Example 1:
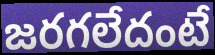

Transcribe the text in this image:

జరగలేదంటే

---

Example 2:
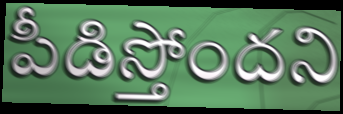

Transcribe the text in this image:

పీడిస్తోందని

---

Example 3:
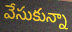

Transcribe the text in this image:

వేసుకున్నా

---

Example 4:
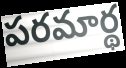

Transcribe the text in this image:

పరమార్థ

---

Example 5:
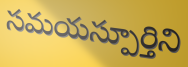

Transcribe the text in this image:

సమయస్పూర్తిని